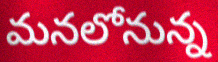
మనలోనున్న